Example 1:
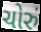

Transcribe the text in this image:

ચોરું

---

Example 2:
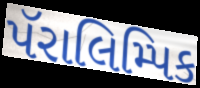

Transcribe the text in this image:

પૅરાલિમ્પિક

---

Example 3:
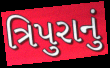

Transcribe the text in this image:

ત્રિપુરાનું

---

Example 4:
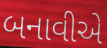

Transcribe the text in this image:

બનાવીએ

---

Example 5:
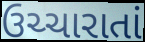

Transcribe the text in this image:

ઉચ્ચારાતાં